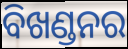
ବିଖଣ୍ଡନର